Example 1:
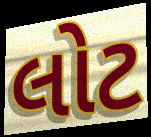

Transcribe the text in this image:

લોટ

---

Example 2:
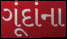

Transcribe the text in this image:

ગૂંદાંના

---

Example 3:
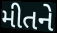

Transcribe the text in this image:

મીતને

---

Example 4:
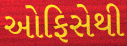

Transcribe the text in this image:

ઓફિસેથી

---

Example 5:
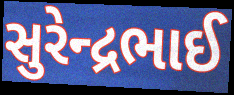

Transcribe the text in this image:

સુરેન્દ્રભાઈ